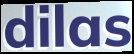
dilas